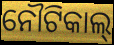
ନୌଟିକାଲ୍